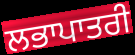
ਲਭਾਪਾਤਰੀ